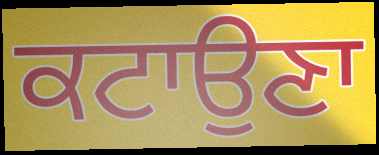
ਕਟਾਉਣਾ